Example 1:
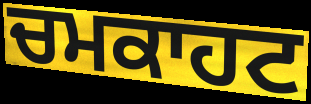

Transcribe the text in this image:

ਚਮਕਾਹਟ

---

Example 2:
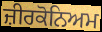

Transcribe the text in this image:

ਜ਼ੀਰਕੋਨਿਅਮ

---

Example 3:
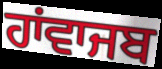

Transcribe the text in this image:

ਹਾਂਵਾਜਬ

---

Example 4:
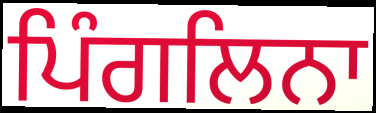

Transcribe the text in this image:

ਪਿੰਗਲਿਨਾ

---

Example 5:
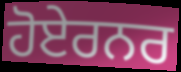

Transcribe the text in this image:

ਹੋਏਰਨਰ